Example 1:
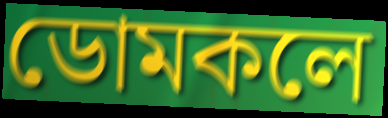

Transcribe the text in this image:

ডোমকলে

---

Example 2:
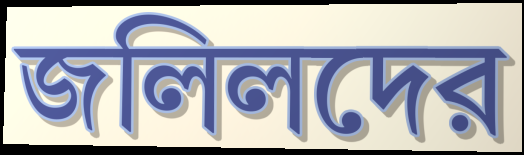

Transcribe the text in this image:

জলিলদের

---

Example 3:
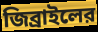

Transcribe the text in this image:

জিব্রাইলের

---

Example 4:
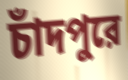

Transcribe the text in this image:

চাঁদপুরে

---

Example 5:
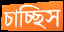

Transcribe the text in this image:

চাচ্ছিস